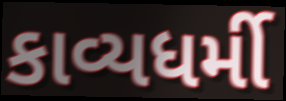
કાવ્યધર્મી